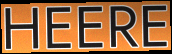
HEERE